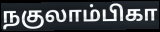
நகுலாம்பிகா